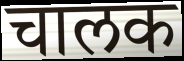
चालक